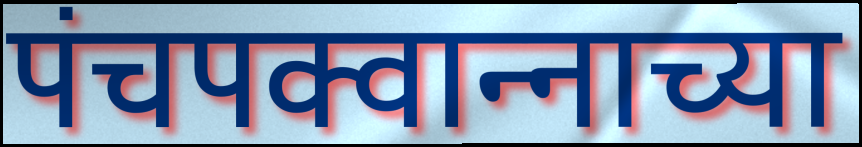
पंचपक्वान्नाच्या